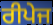
ਰੀਪੇਜ